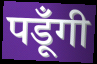
पडूँगी